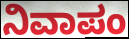
ನಿವಾಪಂ